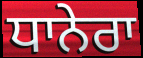
ਧਾਨੇਰਾ